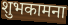
शुभकामना